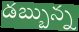
డబ్బున్న